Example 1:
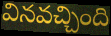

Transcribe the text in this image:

వినవచ్చింది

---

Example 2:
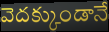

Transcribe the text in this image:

వెదక్కుండానే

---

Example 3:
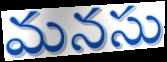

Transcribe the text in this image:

మనసు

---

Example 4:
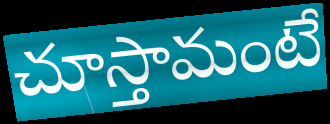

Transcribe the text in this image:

చూస్తామంటే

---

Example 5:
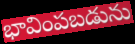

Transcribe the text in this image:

భావింపబడును